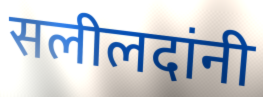
सलीलदांनी